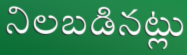
నిలబడినట్లు